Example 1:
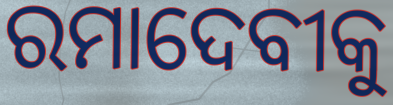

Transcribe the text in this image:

ରମାଦେବୀକୁ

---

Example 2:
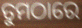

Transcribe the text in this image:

ତୁମଠାରେ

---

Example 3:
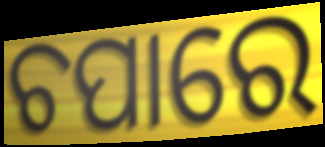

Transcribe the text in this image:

ଚପାରେ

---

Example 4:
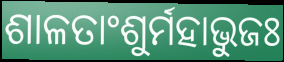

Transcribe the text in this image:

ଶାଳତାଂଶୁର୍ମହାଭୁଜଃ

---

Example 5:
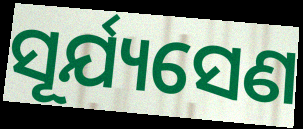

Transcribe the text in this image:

ସୂର୍ଯ୍ୟସେଣ